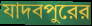
যাদবপুরের